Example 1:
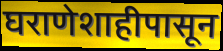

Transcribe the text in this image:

घराणेशाहीपासून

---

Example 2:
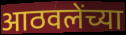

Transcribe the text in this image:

आठवलेंच्या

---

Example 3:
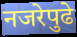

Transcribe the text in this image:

नजरेपुढे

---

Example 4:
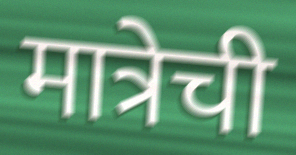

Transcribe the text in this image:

मात्रेची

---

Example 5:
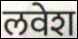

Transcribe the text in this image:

लवेश